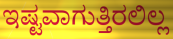
ಇಷ್ಟವಾಗುತ್ತಿರಲಿಲ್ಲ